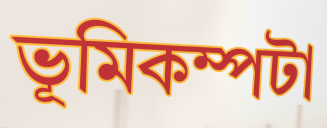
ভূমিকম্পটা